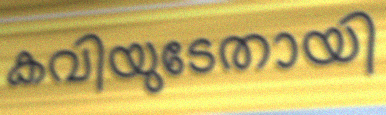
കവിയുടേതായി